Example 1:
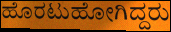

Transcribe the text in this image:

ಹೊರಟುಹೋಗಿದ್ದರು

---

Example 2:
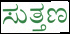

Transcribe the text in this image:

ಸುತ್ತಣ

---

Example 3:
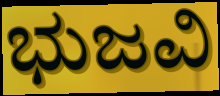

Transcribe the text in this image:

ಭುಜವಿ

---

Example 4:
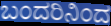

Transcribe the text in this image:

ಬಂದರಿನಿಂದ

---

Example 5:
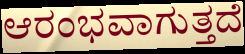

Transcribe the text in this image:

ಆರಂಭವಾಗುತ್ತದೆ